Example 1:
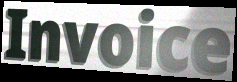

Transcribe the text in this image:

Invoice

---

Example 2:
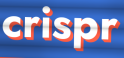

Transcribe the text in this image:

crispr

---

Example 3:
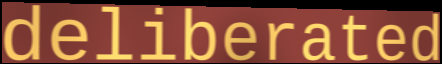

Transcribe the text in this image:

deliberated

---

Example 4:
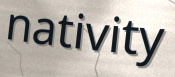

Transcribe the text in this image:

nativity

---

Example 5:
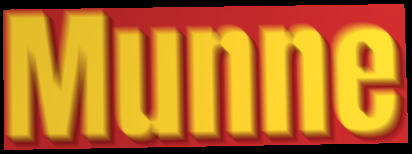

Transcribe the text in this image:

Munne